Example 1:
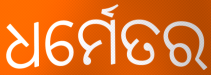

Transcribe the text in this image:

ଧର୍ମେତର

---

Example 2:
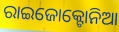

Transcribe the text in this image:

ରାଇଜୋକ୍ଟୋନିଆ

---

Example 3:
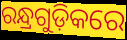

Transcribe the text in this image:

ରନ୍ଧ୍ରଗୁଡ଼ିକରେ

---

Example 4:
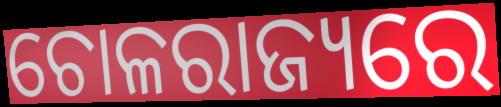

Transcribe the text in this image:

ଚୋଳରାଜ୍ୟରେ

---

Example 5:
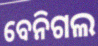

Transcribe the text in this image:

ବେନିଗଲ